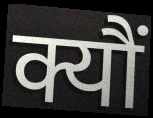
क्यौं